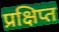
प्रक्षिप्त